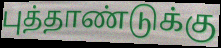
புத்தாண்டுக்கு